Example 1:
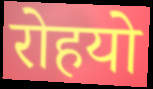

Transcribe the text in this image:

रोहयो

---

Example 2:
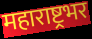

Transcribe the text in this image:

महाराष्ट्रभर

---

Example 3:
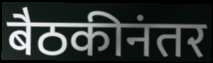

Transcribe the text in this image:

बैठकीनंतर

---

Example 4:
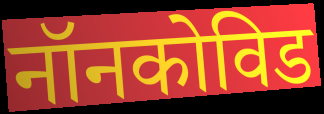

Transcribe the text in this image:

नॉनकोविड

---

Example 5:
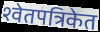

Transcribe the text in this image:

श्वेतपत्रिकेत